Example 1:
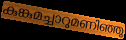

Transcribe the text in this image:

കുങ്കുമച്ചാറുമണിഞ്ഞു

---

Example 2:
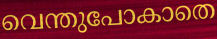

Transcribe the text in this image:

വെന്തുപോകാതെ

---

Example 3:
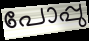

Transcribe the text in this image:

പോപ്പു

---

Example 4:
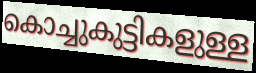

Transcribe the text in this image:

കൊച്ചുകുട്ടികളുള്ള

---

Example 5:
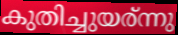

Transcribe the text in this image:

കുതിച്ചുയര്ന്നു